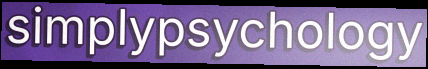
simplypsychology